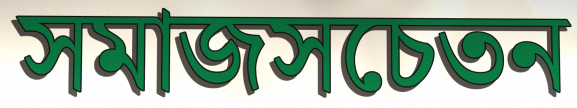
সমাজসচেতন